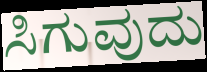
ಸಿಗುವುದು